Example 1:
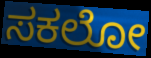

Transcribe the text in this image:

ಸಕಲೋ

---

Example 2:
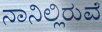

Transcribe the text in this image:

ನಾನಿಲ್ಲಿರುವೆ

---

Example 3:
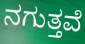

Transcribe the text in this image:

ನಗುತ್ತವೆ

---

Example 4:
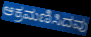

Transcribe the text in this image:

ಆಕ್ರಮಣಿಸಿದವು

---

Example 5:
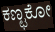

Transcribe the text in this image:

ಕಣ್ಟಕೋ